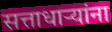
सत्ताधाऱ्यांना